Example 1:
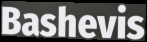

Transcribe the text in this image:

Bashevis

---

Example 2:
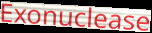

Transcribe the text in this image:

Exonuclease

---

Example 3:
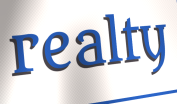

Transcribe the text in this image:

realty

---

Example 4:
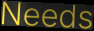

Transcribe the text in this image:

Needs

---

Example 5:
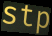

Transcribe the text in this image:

stp